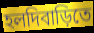
হলদিবাড়িতে